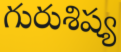
గురుశిష్య